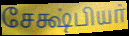
சேக்ஷ்பியர்